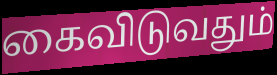
கைவிடுவதும்